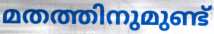
മതത്തിനുമുണ്ട്